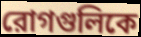
রোগগুলিকে